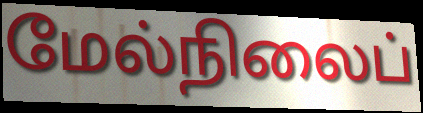
மேல்நிலைப்